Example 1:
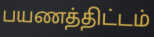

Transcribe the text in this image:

பயணத்திட்டம்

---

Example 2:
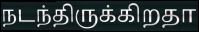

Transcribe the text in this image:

நடந்திருக்கிறதா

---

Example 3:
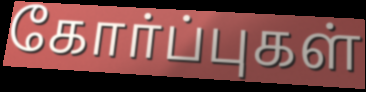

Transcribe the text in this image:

கோர்ப்புகள்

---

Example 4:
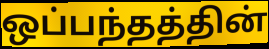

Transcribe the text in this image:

ஒப்பந்தத்தின்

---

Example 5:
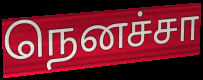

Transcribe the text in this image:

நெனச்சா